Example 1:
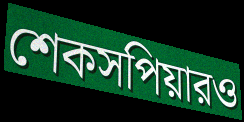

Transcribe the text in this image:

শেকসপিয়ারও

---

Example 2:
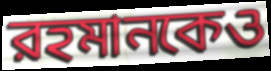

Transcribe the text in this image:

রহমানকেও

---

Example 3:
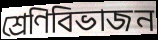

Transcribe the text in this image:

শ্রেণিবিভাজন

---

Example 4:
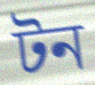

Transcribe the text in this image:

টন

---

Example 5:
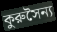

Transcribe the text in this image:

কুরুসৈন্য